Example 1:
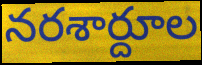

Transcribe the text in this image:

నరశార్దూల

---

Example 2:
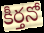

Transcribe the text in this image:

కీర్తనో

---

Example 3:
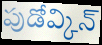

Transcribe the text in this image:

పుడోవ్కిన్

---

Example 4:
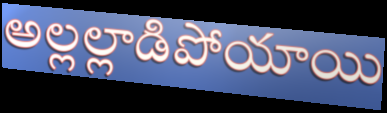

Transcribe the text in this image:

అల్లల్లాడిపోయాయి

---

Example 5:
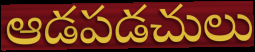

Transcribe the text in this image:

ఆడపడచులు